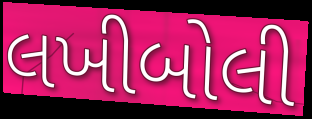
લખીબોલી